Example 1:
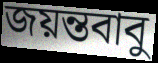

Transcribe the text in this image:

জয়ন্তবাবু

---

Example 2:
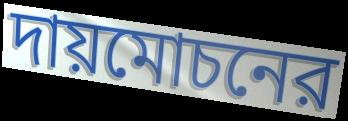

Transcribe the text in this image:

দায়মোচনের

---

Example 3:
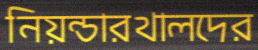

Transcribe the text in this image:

নিয়ন্ডারথালদের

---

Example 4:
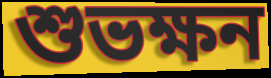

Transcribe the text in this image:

শুভক্ষন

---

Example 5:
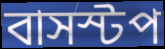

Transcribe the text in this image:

বাসস্টপ